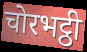
चोरभट्ठी